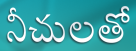
నీచులతో